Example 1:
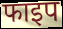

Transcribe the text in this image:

फाइप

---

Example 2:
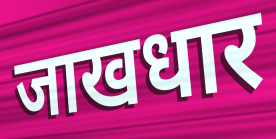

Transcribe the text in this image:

जाखधार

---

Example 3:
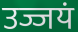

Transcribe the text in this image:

उज्जयं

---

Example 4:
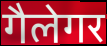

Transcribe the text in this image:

गैलेगर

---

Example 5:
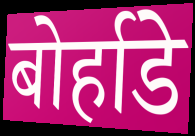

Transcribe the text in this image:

बोर्हाडे